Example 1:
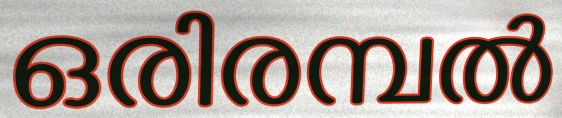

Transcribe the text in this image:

ഒരിരമ്പൽ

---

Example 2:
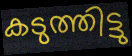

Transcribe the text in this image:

കടുത്തിട്ടു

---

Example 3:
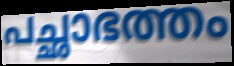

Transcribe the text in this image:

പച്ഛാഭത്തം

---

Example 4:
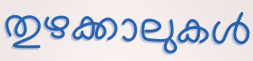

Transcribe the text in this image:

തുഴക്കാലുകൾ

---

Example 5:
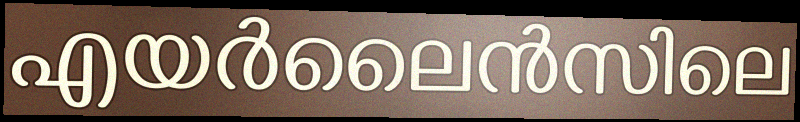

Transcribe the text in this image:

എയർലൈൻസിലെ